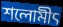
শলোমীৎ